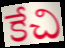
కేచి